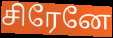
சிரேனே